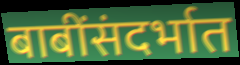
बाबींसंदर्भात